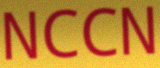
NCCN